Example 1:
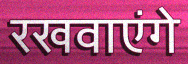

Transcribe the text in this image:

रखवाएंगे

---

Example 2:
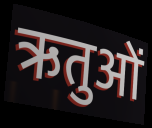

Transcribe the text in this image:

ऋतुओं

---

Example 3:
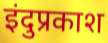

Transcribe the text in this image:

इंदुप्रकाश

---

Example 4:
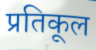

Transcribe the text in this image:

प्रतिकूल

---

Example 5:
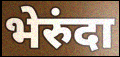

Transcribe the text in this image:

भेरुंदा